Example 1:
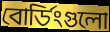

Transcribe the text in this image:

বোর্ডিংগুলো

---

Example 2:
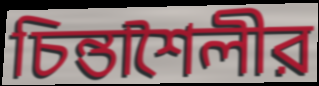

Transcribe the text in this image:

চিন্তাশৈলীর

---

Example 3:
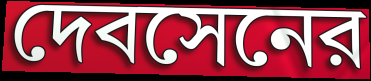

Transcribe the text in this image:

দেবসেনের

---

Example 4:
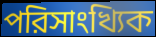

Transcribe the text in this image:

পরিসাংখ্যিক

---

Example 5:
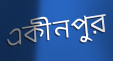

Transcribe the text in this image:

একীনপুর